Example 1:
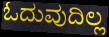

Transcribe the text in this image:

ಓದುವುದಿಲ್ಲ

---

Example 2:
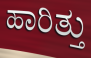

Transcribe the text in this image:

ಹಾರಿತ್ತು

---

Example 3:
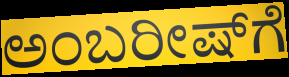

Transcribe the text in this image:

ಅಂಬರೀಷ್‌ಗೆ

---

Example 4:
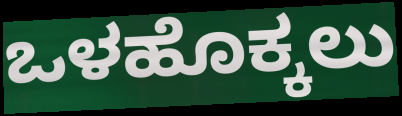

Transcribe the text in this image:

ಒಳಹೊಕ್ಕಲು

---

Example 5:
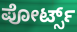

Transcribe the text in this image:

ಪೋರ್ಟ್ಸ್